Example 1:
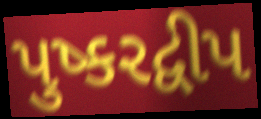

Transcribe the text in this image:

પુષ્કરદ્વીપ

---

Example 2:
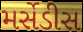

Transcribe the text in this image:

મર્સેડીસ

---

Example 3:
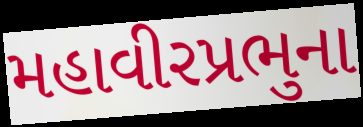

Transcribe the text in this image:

મહાવીરપ્રભુના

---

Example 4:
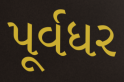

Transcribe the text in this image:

પૂર્વધર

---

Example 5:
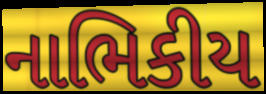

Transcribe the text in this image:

નાભિકીય